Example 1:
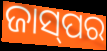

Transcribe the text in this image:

ଜାସ୍‌ପର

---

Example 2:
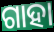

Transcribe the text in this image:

ଗାହା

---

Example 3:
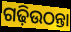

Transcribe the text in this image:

ଗଢ଼ିଉଠନ୍ତା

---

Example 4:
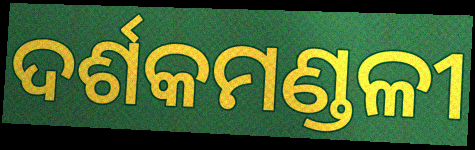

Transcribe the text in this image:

ଦର୍ଶକମଣ୍ଡଳୀ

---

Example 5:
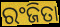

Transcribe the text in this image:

ରଂଜିତା